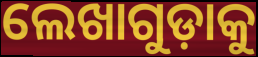
ଲେଖାଗୁଡ଼ାକୁ